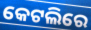
କେଟଲିରେ